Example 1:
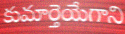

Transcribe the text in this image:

కుమార్తెయేగాని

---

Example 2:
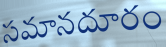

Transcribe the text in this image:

సమానదూరం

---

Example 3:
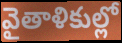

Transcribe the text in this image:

వైతాళికుల్లో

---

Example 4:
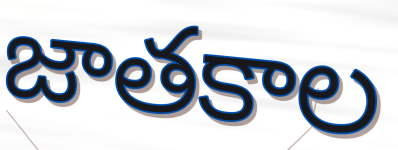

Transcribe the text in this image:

జాతకాల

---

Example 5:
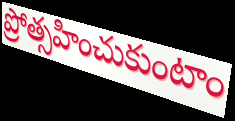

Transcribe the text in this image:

ప్రోత్సహించుకుంటాం